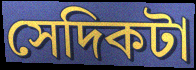
সেদিকটা